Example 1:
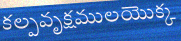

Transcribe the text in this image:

కల్పవృక్షములయొక్క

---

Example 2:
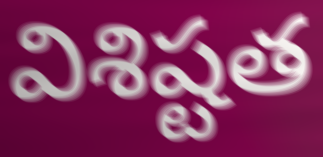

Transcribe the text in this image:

విశిష్టత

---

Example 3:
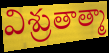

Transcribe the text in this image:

విశ్రుతాత్మా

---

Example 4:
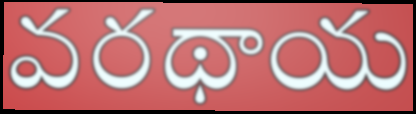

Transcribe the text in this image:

వరథాయ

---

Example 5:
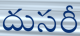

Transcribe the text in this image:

దుసరీ